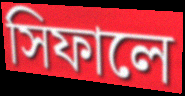
সিফালে